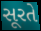
સૂરતે